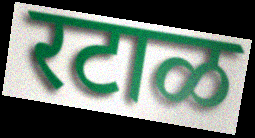
रटाळ